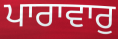
ਪਾਰਾਵਾਰੁ